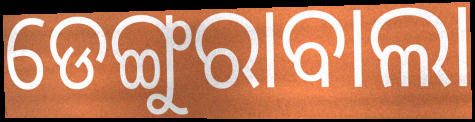
ଡେଙ୍ଗୁରାବାଲା